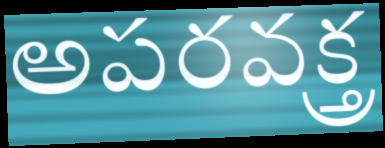
అపరవక్త్ర